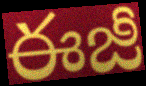
ఈజీ